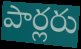
పార్లరు